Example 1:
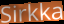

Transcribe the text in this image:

Sirkka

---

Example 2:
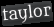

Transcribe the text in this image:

taylor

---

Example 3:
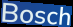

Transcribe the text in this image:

Bosch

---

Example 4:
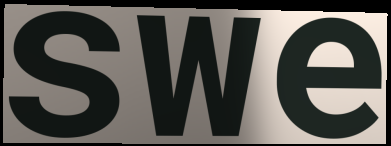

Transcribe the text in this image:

swe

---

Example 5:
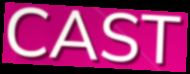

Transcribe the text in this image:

CAST